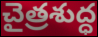
చైత్రశుద్ధ